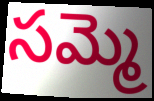
సమ్మె